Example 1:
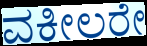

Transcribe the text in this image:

ವಕೀಲರೇ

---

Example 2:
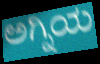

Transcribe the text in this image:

ಅಗ್ನಿಯ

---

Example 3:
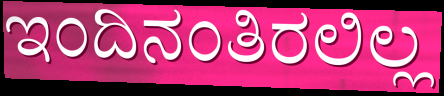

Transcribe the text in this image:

ಇಂದಿನಂತಿರಲಿಲ್ಲ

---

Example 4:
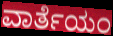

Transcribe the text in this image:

ವಾರ್ತೆಯಂ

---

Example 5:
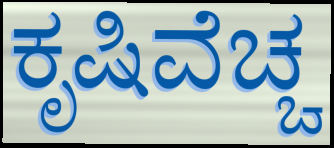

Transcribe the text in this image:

ಕೃಷಿವೆಚ್ಚ